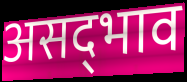
असद्भाव